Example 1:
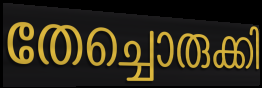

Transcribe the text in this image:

തേച്ചൊരുക്കി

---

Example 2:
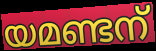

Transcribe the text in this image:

യമണ്ടന്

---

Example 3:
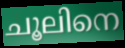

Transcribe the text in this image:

ചൂലിനെ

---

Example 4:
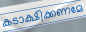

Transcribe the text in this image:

കടാക്ഷിക്കണമേ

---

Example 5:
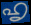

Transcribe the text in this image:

ഹൃ